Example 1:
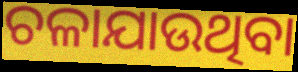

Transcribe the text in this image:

ଚଳାଯାଉଥିବା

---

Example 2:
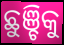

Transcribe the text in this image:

ଛୁଞ୍ଚିକୁ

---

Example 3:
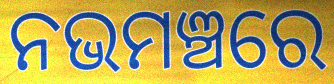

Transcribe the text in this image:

ନଭମଞ୍ଚରେ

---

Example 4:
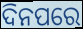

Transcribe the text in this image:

ଦିନପରେ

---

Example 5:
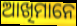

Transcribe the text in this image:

ଆଖିମାନେ